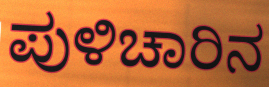
ಪುಳಿಚಾರಿನ